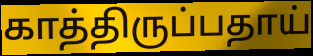
காத்திருப்பதாய்